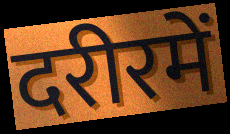
दरीरमें